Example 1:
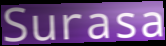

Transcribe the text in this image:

Surasa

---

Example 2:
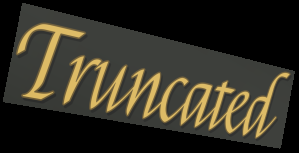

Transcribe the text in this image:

Truncated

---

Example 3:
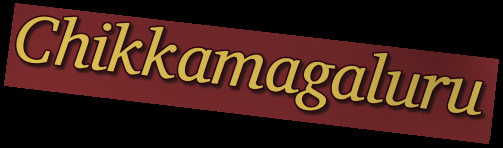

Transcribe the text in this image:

Chikkamagaluru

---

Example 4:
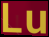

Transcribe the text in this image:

Lu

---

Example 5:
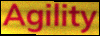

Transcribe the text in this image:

Agility